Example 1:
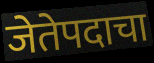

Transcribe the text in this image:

जेतेपदाचा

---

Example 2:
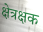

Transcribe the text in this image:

क्षेत्रक्षक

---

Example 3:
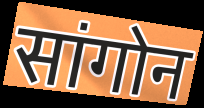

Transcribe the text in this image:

सांगोन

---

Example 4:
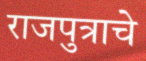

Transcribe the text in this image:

राजपुत्राचे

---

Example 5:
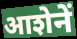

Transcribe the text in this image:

आशेनें